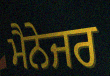
ਮੈਨੇਜਰ